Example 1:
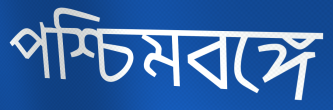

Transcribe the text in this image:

পশ্চিমবঙ্গে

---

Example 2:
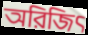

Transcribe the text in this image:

অরিজিৎ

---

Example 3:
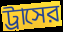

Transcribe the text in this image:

ট্রাসের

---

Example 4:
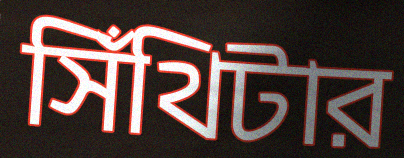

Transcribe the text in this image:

সিঁথিটার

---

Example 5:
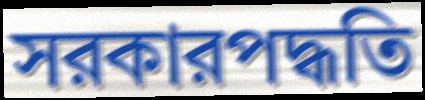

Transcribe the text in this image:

সরকারপদ্ধতি